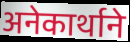
अनेकार्थाने